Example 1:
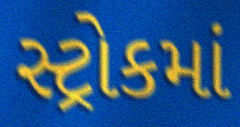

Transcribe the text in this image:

સ્ટ્રોકમાં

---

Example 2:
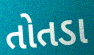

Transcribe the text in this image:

તોતડા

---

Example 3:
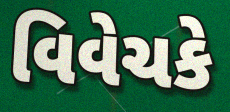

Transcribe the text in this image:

વિવેચકે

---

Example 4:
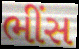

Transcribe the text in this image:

ભીંસ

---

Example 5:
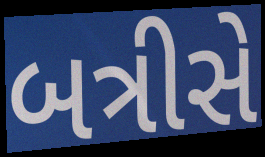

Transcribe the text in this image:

બત્રીસે